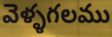
వెళ్ళగలము